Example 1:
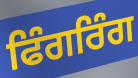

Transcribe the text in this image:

ਫਿੰਗਰਿੰਗ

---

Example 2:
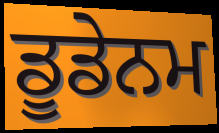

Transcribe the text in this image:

ਡੂਡੇਨਮ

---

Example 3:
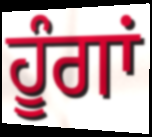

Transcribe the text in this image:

ਹੂੰਗਾਂ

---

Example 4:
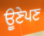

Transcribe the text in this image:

ਊਣੇਪਣ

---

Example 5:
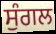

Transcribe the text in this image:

ਸੁੰਗਲ